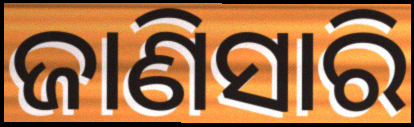
ଜାଣିସାରି